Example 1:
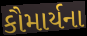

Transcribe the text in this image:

કૌમાર્યના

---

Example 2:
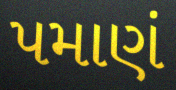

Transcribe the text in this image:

પમાણં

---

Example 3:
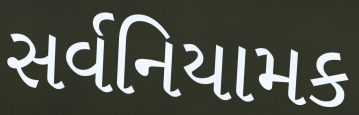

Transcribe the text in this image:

સર્વનિયામક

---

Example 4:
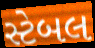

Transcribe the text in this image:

સ્ટેબલ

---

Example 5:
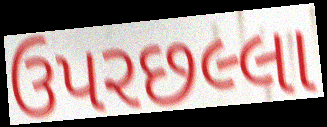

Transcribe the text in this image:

ઉપરછલ્લા